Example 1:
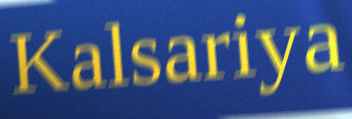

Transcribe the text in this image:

Kalsariya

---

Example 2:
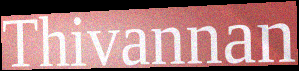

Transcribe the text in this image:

Thivannan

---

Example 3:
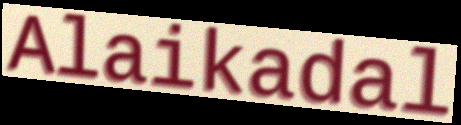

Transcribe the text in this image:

Alaikadal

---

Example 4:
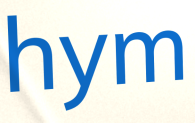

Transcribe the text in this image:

hym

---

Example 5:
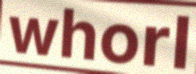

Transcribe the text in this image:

whorl